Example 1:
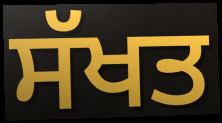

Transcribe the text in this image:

ਸੱਖਤ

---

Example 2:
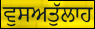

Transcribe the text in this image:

ਵੁਸਅਤੁੱਲਾਹ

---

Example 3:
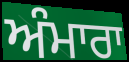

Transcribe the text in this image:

ਅੰਮਾਰਾ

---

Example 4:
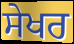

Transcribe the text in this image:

ਸੇਖਰ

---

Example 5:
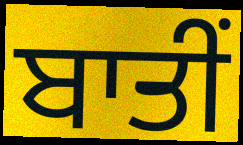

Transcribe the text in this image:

ਬਾਤੀਂ